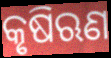
କୃଷିଋଣ